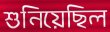
শুনিয়েছিল